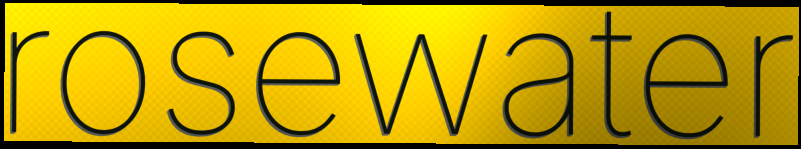
rosewater